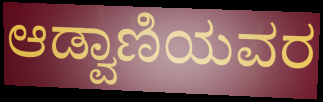
ಆಡ್ವಾಣಿಯವರ